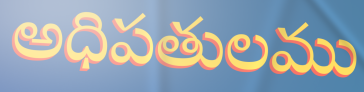
అధిపతులము